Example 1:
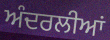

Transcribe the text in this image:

ਅੰਦਰਲੀਆਂ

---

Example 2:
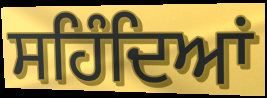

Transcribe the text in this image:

ਸਹਿੰਦਿਆਂ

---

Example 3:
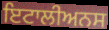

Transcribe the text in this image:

ਇਟਾਲੀਅਨਸ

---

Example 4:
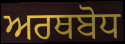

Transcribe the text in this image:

ਅਰਥਬੋਧ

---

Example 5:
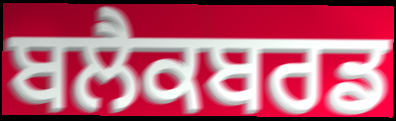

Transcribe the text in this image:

ਬਲੈਕਬਰਡ